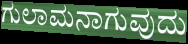
ಗುಲಾಮನಾಗುವುದು